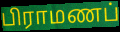
பிராமணப்